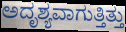
ಅದೃಶ್ಯವಾಗುತ್ತಿತ್ತು